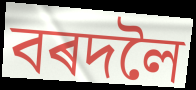
বৰদলৈ